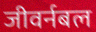
जीवर्नबल